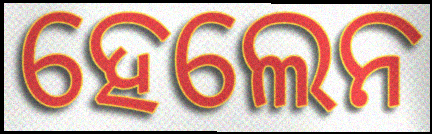
ହେଲେନ